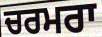
ਚਰਮਰਾ